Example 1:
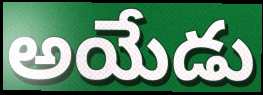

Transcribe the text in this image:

అయేడు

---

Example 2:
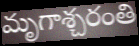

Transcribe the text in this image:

మృగాశ్చరంతి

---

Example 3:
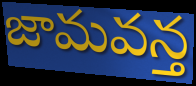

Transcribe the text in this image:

జామవన్త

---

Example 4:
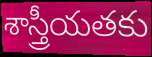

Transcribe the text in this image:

శాస్త్రీయతకు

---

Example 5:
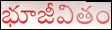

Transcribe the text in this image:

భూజీవితం